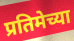
प्रतिमेच्या